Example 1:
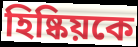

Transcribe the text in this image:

হিষ্কিয়কে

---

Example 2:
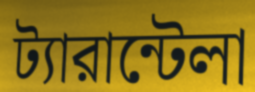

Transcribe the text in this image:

ট্যারান্টেলা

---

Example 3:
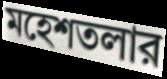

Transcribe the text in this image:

মহেশতলার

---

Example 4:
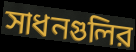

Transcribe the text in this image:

সাধনগুলির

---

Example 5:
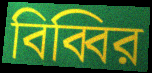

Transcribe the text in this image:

বিব্বির